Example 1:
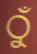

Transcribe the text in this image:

ଠୁଁ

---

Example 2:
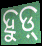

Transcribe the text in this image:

ହୁଡ଼୍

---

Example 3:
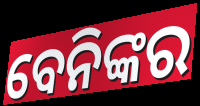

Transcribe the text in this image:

ବେନିଙ୍କର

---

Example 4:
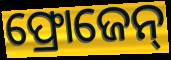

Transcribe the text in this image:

ଫ୍ରୋଜେନ୍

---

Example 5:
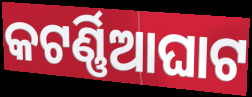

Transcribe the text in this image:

କଟର୍ଣ୍ଣିଆଘାଟ